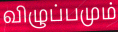
விழுப்பமும்